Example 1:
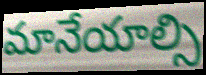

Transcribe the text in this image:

మానేయాల్సి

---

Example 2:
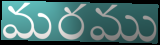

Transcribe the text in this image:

మరము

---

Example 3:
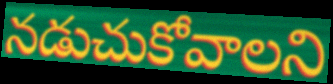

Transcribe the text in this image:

నడుచుకోవాలని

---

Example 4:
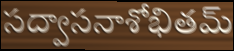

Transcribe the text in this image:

సద్వాసనాశోభితమ్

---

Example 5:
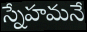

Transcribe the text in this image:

స్నేహమనే